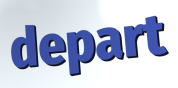
depart